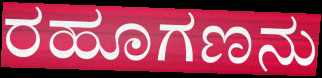
ರಹೂಗಣನು